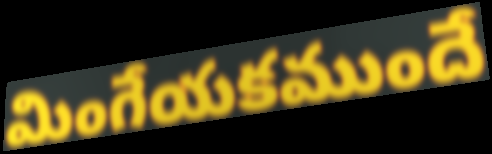
మింగేయకముందే